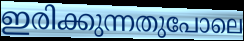
ഇരിക്കുന്നതുപോലെ